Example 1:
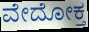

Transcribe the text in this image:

ವೇದೋಕ್ತ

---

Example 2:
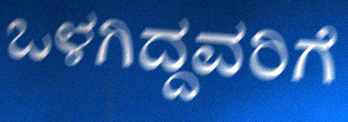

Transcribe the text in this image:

ಒಳಗಿದ್ದವರಿಗೆ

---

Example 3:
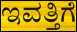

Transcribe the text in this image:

ಇವತ್ತಿಗೆ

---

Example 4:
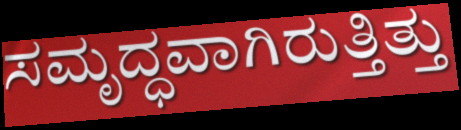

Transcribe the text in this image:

ಸಮೃದ್ಧವಾಗಿರುತ್ತಿತ್ತು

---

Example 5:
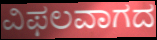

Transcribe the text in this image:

ವಿಫಲವಾಗದ